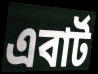
এবার্ট